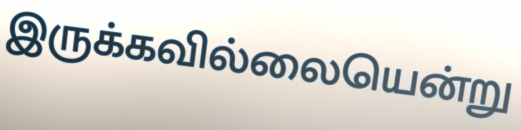
இருக்கவில்லையென்று